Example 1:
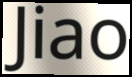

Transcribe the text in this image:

Jiao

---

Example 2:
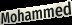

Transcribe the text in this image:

Mohammed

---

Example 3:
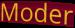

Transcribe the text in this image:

Moder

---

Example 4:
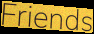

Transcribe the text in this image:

Friends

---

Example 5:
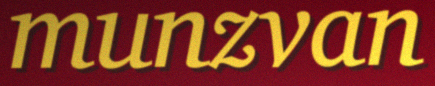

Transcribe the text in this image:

munzvan